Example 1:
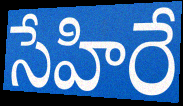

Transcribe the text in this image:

సేహిరే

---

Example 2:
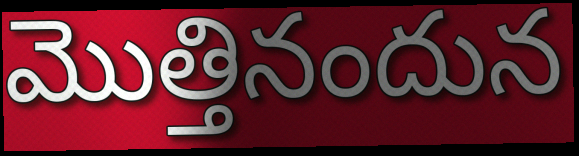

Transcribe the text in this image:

మొత్తినందున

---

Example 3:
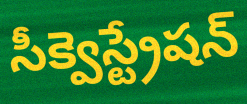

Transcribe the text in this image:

సీక్వెస్ట్రేషన్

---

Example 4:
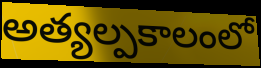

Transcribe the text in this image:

అత్యల్పకాలంలో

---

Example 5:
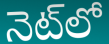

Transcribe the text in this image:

నెట్‌లో